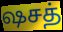
ஷசத்